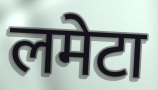
लमेटा